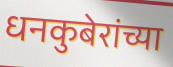
धनकुबेरांच्या